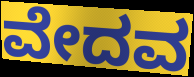
ವೇದವ